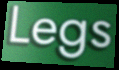
Legs